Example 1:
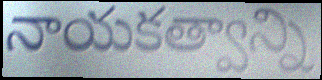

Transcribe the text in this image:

నాయకత్వాన్ని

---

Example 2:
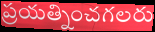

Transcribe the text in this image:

ప్రయత్నించగలరు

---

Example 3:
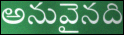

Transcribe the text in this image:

అనువైనది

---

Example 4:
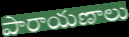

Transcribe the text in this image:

పారాయణాలు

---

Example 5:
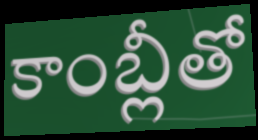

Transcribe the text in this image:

కాంబ్లీతో